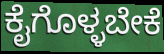
ಕೈಗೊಳ್ಳಬೇಕೆ